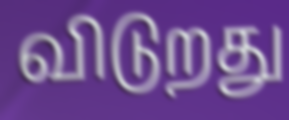
விடுறது